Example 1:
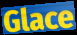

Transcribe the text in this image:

Glace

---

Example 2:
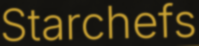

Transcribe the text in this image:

Starchefs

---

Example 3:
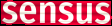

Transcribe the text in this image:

sensus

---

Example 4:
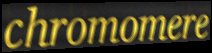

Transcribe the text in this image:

chromomere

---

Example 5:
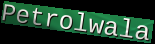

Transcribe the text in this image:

Petrolwala